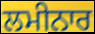
ਲਮੀਨਾਰ